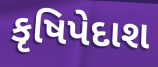
કૃષિપેદાશ